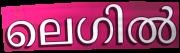
ലെഗിൽ